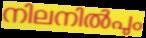
നിലനിൽപും